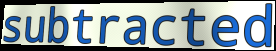
subtracted